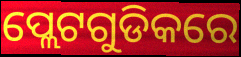
ପ୍ଲେଟଗୁଡିକରେ